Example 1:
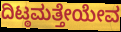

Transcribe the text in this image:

ದಿಟ್ಠಮತ್ತೇಯೇವ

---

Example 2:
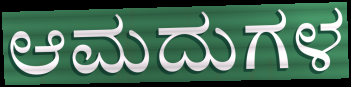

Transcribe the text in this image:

ಆಮದುಗಳ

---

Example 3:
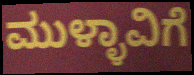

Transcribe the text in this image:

ಮುಳ್ಳಾವಿಗೆ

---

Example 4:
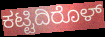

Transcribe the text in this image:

ಕಟ್ಟಿದಿರೊಳ್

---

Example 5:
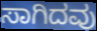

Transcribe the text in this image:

ಸಾಗಿದವು